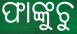
ଫାଙ୍କୁଚୁ